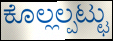
ಕೊಲ್ಲಲ್ಪಟ್ಟು